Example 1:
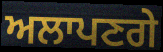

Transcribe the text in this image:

ਅਲਾਪਣਗੇ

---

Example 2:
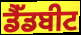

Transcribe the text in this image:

ਡੈੱਡਬੀਟ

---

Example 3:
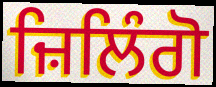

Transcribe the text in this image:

ਜ਼ਿਲਿੰਗੋ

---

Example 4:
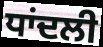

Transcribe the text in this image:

ਧਾਂਦਲੀ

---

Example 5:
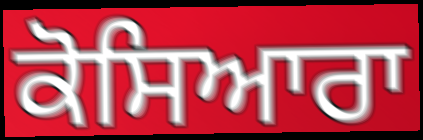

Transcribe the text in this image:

ਕੋਸਿਆਰਾ